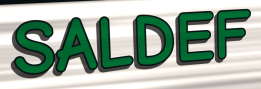
SALDEF